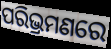
ପରିଭ୍ରମଣରେ